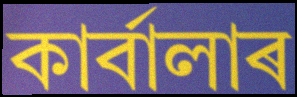
কাৰ্বালাৰ